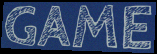
GAME